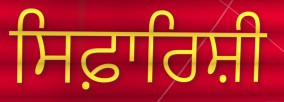
ਸਿਫ਼ਾਰਿਸ਼ੀ